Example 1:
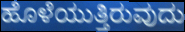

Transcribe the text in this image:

ಹೊಳೆಯುತ್ತಿರುವುದು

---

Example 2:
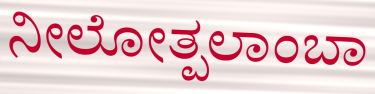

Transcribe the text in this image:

ನೀಲೋತ್ಪಲಾಂಬಾ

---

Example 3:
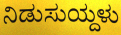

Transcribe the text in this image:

ನಿಡುಸುಯ್ದಳು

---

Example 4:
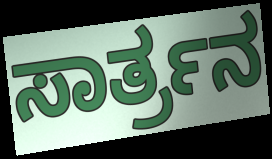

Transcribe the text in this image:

ಸಾರ್ತ್ರನ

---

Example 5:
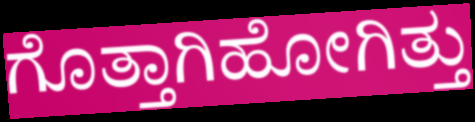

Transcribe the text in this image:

ಗೊತ್ತಾಗಿಹೋಗಿತ್ತು